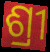
ଶ୍ରୀ